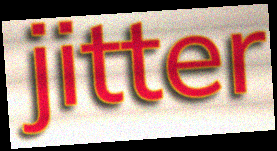
jitter